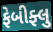
ફેબીફ્લુ